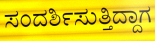
ಸಂದರ್ಶಿಸುತ್ತಿದ್ದಾಗ